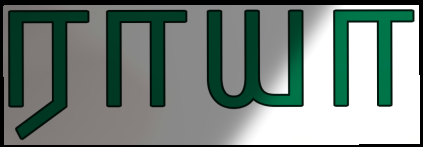
ராயா